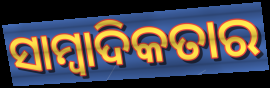
ସାମ୍ୱାଦିକତାର